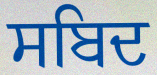
ਸਬਿਦ